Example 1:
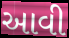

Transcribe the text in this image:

આવી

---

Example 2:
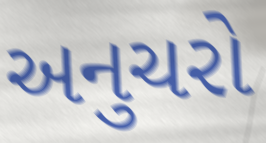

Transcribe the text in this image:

અનુચરો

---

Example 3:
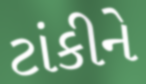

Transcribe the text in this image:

ટાંકીને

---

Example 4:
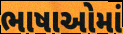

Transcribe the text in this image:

ભાષાઓમાં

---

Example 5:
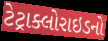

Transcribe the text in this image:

ટેટ્રાક્લોરાઇડનો